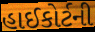
હાઈકોર્ટની